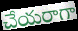
చేయరాగా